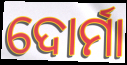
ଦୋର୍ମା